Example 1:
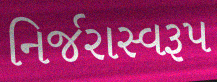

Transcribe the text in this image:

નિર્જરાસ્વરૂપ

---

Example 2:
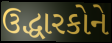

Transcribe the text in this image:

ઉદ્ધારકોને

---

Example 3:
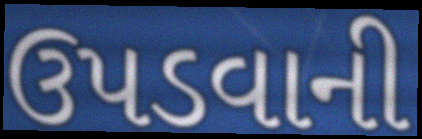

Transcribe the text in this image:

ઉપડવાની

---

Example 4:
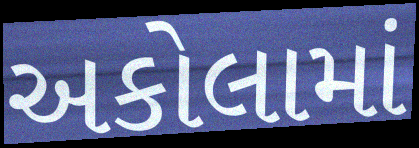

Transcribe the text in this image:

અકોલામાં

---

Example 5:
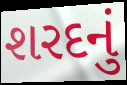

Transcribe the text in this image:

શરદનું